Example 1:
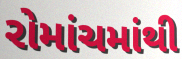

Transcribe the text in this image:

રોમાંચમાંથી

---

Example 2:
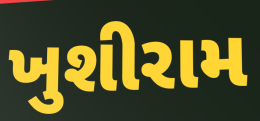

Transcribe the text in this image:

ખુશીરામ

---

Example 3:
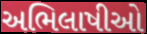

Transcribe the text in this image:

અભિલાષીઓ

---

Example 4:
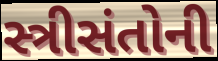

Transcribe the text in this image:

સ્ત્રીસંતોની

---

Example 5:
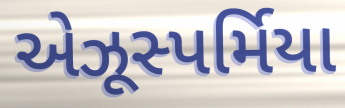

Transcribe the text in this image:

એઝૂસ્પર્મિયા